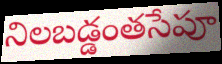
నిలబడ్డంతసేపూ